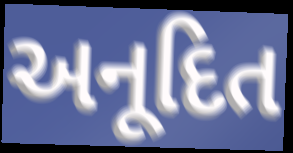
અનૂદિત